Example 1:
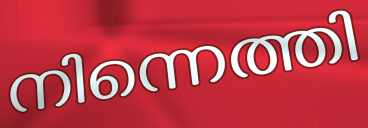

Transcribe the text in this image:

നിന്നെത്തി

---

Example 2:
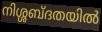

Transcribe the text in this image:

നിശ്ശബ്ദതയിൽ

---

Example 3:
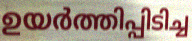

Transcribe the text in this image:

ഉയർത്തിപ്പിടിച്ച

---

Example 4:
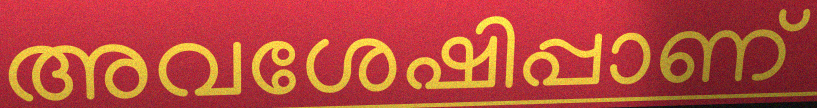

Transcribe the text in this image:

അവശേഷിപ്പാണ്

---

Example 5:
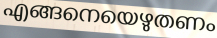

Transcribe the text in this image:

എങ്ങനെയെഴുതണം